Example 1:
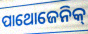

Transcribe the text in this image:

ପାଥୋଜେନିକ୍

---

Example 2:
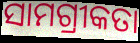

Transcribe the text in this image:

ସାମଗ୍ରୀକତା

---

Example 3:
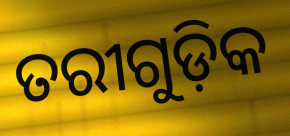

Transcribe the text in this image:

ତରୀଗୁଡ଼ିକ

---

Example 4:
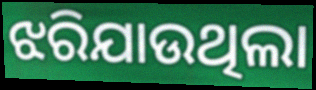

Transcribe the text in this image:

ଝରିଯାଉଥିଲା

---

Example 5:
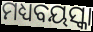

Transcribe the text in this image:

ମଧ୍ୟବୟସ୍କା